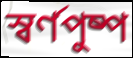
স্বর্ণপুষ্প